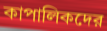
কাপালিকদের